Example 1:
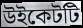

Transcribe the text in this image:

উইকেটটি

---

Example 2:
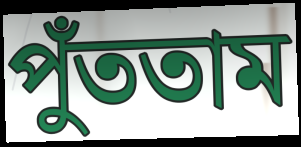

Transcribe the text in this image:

পুঁততাম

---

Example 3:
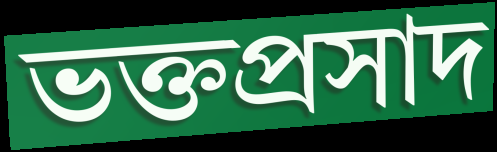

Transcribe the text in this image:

ভক্তপ্রসাদ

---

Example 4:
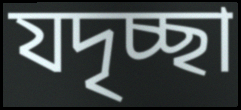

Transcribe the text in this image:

যদৃচ্ছা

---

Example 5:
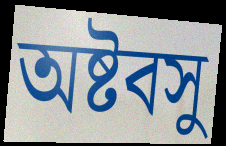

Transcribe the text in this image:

অষ্টবসু